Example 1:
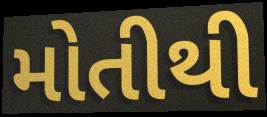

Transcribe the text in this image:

મોતીથી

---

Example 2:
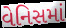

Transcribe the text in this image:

વેનિસમાં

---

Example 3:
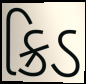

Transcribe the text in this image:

ક્રિડ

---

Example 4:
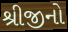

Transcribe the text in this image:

શ્રીજીનો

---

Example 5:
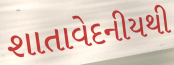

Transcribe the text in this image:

શાતાવેદનીયથી